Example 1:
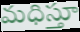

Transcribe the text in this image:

మధిస్తూ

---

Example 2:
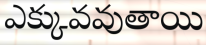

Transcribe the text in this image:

ఎక్కువవుతాయి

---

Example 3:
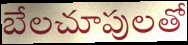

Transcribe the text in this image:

బేలచూపులతో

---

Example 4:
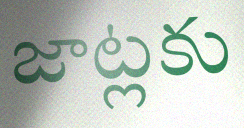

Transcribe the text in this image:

జాట్లకు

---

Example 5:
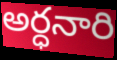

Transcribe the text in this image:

అర్ధనారి